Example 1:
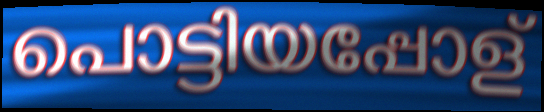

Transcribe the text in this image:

പൊട്ടിയപ്പോള്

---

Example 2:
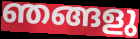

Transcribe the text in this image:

ഞങ്ങളു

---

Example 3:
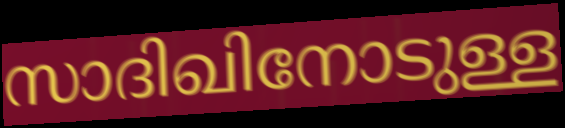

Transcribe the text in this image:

സാദിഖിനോടുള്ള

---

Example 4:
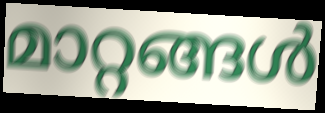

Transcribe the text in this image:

മാറ്റങ്ങൾ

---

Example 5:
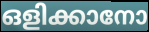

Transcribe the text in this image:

ഒളിക്കാനോ